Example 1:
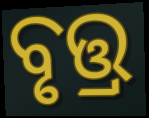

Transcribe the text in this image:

ବୃତ୍ତ୍ର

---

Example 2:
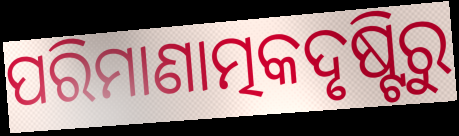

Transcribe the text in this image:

ପରିମାଣାତ୍ମକଦୃଷ୍ଟିରୁ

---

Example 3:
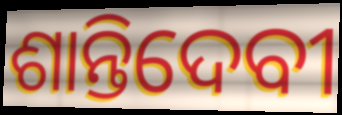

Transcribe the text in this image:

ଶାନ୍ତିଦେବୀ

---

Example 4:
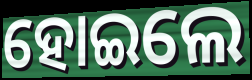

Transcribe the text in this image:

ହୋଇଲେ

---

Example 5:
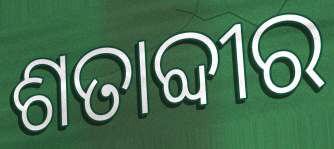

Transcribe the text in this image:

ଶତାବ୍ଦୀର